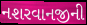
નશરવાનજીની